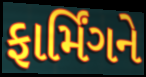
ફાર્મિંગને